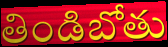
తిండిబోతు